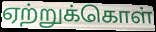
ஏற்றுக்கொள்